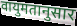
वायुमतानुसार